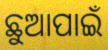
ଛୁଆପାଇଁ